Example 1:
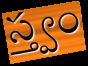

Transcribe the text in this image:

స్త్వం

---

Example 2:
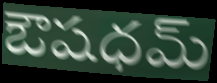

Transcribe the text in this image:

ఔషధమ్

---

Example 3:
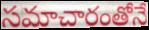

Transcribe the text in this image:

సమాచారంతోనే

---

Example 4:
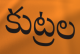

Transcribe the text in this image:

కుట్రల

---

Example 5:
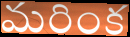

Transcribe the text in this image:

మరింక